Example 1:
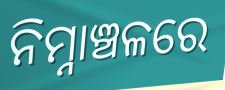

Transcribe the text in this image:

ନିମ୍ନାଞ୍ଚଳରେ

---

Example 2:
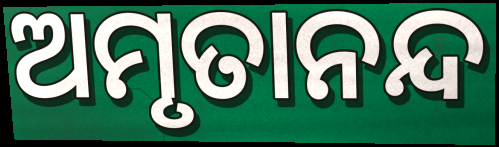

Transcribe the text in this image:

ଅମୃତାନନ୍ଦ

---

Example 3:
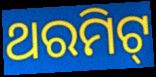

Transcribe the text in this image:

ଥରମିଟ୍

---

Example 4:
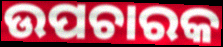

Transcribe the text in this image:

ଉପଚାରକ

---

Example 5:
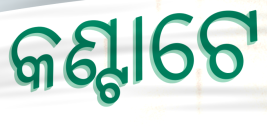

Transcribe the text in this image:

କଣ୍ଟାଟେ